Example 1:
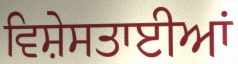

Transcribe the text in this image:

ਵਿਸ਼ੇਸਤਾਈਆਂ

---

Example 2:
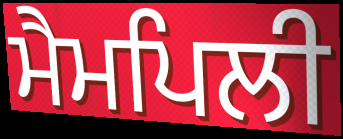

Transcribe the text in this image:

ਮੈਮਪਿਲੀ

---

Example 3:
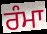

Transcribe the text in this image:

ਰੰਮਾ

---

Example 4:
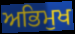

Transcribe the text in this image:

ਅਭਿਮੁਖ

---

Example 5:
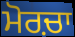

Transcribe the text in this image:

ਮੋਰ਼ਚਾ